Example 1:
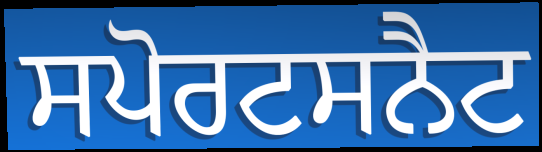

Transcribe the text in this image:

ਸਪੋਰਟਸਨੈਟ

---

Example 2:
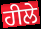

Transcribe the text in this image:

ਹੀਲੇ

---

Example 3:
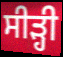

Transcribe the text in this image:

ਸੀੜ੍ਹੀ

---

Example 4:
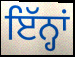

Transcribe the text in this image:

ਇੱਨ੍ਹਾਂ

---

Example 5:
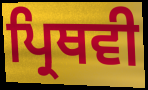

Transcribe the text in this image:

ਪ੍ਰਿਥਵੀ